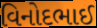
વિનોદભાઈ